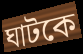
ঘাটকে